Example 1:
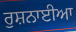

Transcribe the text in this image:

ਰੁਸ਼ਨਾਈਆ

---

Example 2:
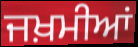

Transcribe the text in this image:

ਜਖ਼ਮੀਆਂ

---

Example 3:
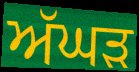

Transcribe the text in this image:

ਅੱਘੜ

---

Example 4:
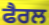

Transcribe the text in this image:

ਫੈਰਲ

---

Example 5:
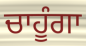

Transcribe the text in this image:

ਚਾਹੂੰਗਾ